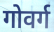
गोवर्ग